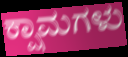
ಕ್ಷಾಮಗಳು